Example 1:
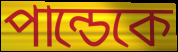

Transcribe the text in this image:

পান্ডেকে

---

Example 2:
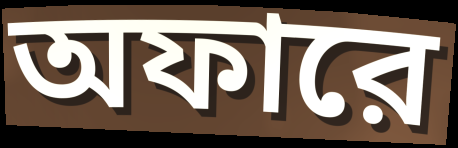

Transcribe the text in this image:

অফারে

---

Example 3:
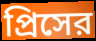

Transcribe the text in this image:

প্রিসের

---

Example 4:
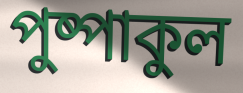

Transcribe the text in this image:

পুষ্পাকুল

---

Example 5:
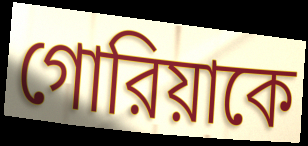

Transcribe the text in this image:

গোরিয়াকে